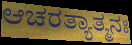
ಆಚರತ್ಯಾತ್ಮನಃ